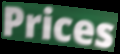
Prices